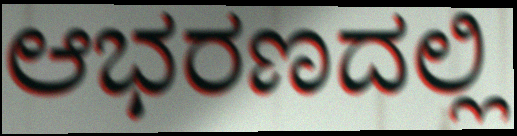
ಆಭರಣದಲ್ಲಿ